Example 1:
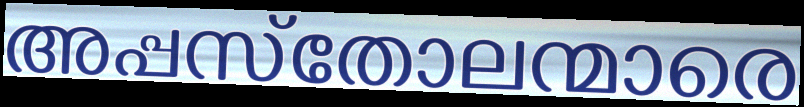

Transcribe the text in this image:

അപ്പസ്‌തോലന്മാരെ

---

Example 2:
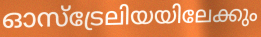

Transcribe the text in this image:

ഓസ്ട്രേലിയയിലേക്കും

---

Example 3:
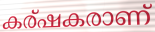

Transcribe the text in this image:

കര്ഷകരാണ്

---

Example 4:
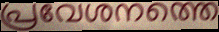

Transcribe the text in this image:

പ്രവേശനത്തെ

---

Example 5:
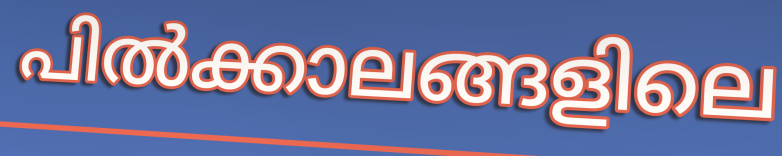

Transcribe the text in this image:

പിൽക്കാലങ്ങളിലെ